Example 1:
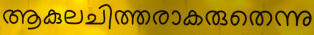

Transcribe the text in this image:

ആകുലചിത്തരാകരുതെന്നു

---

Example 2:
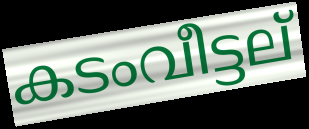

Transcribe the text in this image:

കടംവീട്ടല്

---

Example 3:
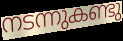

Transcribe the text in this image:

നടന്നുകണ്ടു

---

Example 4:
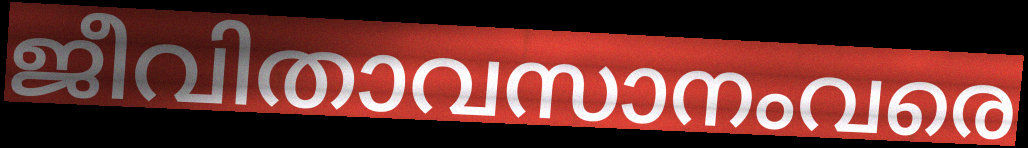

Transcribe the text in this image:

ജീവിതാവസാനംവരെ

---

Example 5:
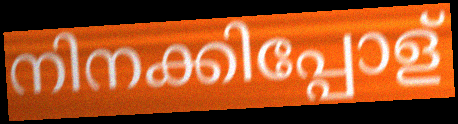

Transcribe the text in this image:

നിനക്കിപ്പോള്